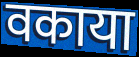
वकाया